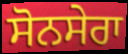
ਸੋਨਸੇਰਾ